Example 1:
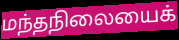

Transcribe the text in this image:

மந்தநிலையைக்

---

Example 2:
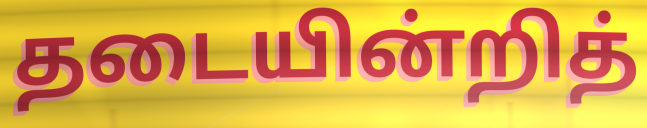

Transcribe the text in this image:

தடையின்றித்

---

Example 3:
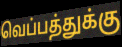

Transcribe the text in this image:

வெப்பத்துக்கு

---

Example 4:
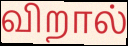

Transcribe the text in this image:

விறால்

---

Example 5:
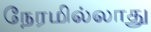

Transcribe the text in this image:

நேரமில்லாது